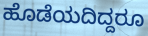
ಹೊಡೆಯದಿದ್ದರೂ